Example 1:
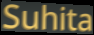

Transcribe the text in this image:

Suhita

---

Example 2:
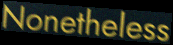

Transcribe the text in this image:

Nonetheless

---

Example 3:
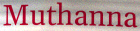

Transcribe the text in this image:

Muthanna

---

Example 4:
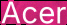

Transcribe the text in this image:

Acer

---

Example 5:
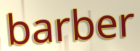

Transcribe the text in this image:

barber